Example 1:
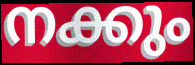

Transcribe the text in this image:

നക്കും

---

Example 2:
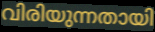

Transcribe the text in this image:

വിരിയുന്നതായി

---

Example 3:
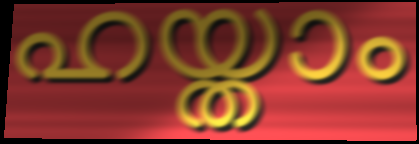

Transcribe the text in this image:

ഹയ്താം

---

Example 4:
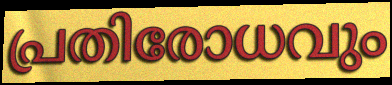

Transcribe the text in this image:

പ്രതിരോധവും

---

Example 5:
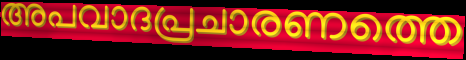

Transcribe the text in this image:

അപവാദപ്രചാരണത്തെ